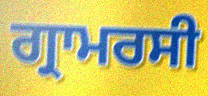
ਗ੍ਰਾਮਰਸੀ